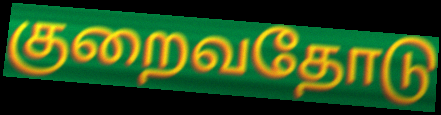
குறைவதோடு